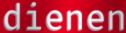
dienen